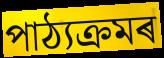
পাঠ্যক্ৰমৰ